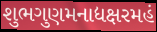
શુભગુણમનાદ્યક્ષરમહં